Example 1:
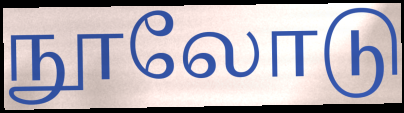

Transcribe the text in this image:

நூலோடு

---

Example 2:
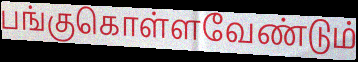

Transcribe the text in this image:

பங்குகொள்ளவேண்டும்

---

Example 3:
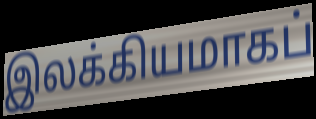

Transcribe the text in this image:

இலக்கியமாகப்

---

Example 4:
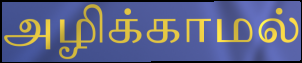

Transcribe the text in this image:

அழிக்காமல்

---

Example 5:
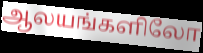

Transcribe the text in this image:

ஆலயங்களிலோ